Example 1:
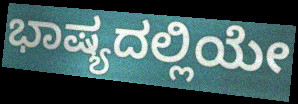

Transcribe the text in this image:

ಭಾಷ್ಯದಲ್ಲಿಯೇ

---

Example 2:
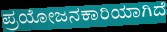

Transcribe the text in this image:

ಪ್ರಯೋಜನಕಾರಿಯಾಗಿದೆ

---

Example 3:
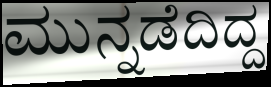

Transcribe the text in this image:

ಮುನ್ನಡೆದಿದ್ದ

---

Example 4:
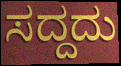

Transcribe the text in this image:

ಸದ್ದದು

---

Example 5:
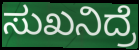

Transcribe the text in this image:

ಸುಖನಿದ್ರೆ